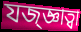
যজ্জ্ঞাত্বা